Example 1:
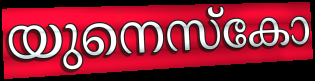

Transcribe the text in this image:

യുനെസ്കോ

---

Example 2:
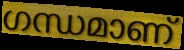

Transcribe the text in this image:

ഗന്ധമാണ്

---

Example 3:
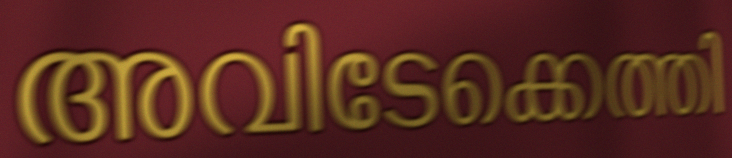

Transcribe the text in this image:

അവിടേക്കെത്തി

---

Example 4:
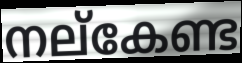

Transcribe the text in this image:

നല്കേണ്ട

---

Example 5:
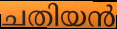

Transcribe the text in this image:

ചതിയൻ